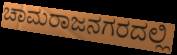
ಚಾಮರಾಜನಗರದಲ್ಲಿ